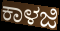
ಕಾಳಜಿ